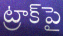
ట్రాక్‌పై